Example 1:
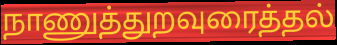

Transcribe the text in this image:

நாணுத்துறவுரைத்தல்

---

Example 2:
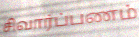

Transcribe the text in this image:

சிவார்ப்பணம்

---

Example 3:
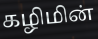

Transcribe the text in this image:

கழிமின்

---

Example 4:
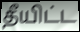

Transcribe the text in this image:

தீயிட்ட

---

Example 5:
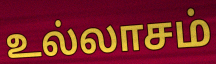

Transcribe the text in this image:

உல்லாசம்